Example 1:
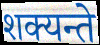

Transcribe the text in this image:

शक्यन्ते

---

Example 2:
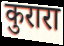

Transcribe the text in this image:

कुरारा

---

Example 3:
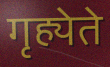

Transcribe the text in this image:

गृह्येते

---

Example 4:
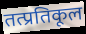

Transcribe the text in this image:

तत्प्रतिकूल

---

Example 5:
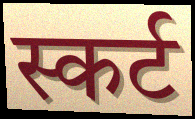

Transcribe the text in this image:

स्कर्ट